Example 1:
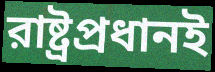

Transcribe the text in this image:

রাষ্ট্রপ্রধানই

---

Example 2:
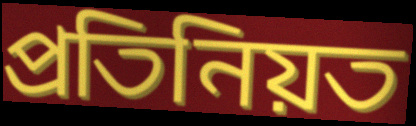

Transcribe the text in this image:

প্রতিনিয়ত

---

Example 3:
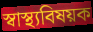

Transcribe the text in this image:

স্বাস্থ্যবিষয়ক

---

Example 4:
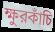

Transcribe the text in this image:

ক্ষুরকাঁচি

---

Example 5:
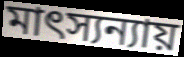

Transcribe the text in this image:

মাৎস্যন্যায়